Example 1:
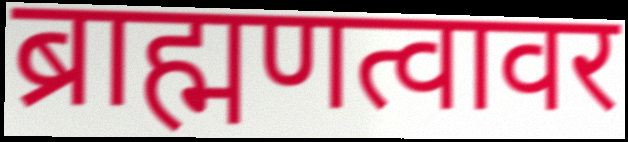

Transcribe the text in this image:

ब्राह्मणत्वावर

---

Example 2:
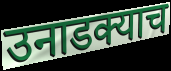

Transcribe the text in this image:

उनाडक्याच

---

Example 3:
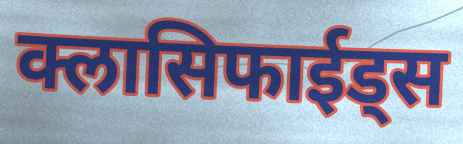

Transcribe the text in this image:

क्लासिफाईड्स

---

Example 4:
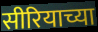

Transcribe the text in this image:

सीरियाच्या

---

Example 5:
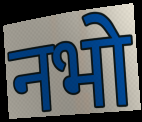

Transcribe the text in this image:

नभो